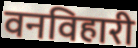
वनविहारी